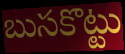
బుసకొట్టు